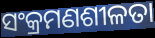
ସଂକ୍ରମଣଶୀଳତା